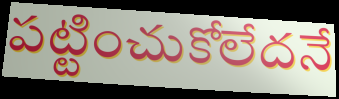
పట్టించుకోలేదనే